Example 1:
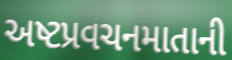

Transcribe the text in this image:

અષ્ટપ્રવચનમાતાની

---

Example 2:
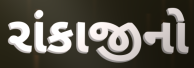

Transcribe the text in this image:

રાંકાજીનો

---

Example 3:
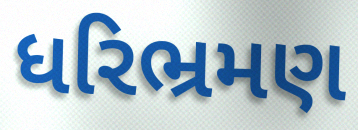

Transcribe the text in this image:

ધરિભ્રમણ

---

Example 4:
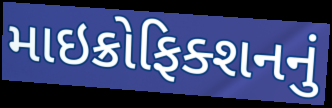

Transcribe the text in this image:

માઇક્રોફિક્શનનું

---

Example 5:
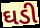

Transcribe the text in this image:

ઘડી